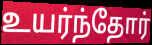
உயர்ந்தோர்